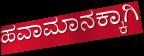
ಹವಾಮಾನಕ್ಕಾಗಿ